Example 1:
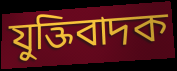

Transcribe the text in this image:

যুক্তিবাদক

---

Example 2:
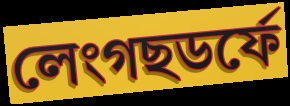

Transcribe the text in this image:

লেংগছডৰ্ফে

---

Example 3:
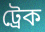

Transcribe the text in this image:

ট্ৰেক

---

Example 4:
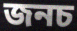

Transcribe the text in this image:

জনচ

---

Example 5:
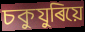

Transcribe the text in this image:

চকুযুৰিয়ে